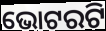
ଭୋଟରଟି